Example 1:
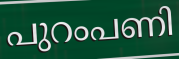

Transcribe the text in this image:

പുറംപണി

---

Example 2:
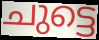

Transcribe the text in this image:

ചുട്ടെ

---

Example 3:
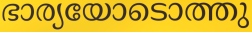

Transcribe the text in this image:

ഭാര്യയോടൊത്തു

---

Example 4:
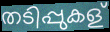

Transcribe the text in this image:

തടിപ്പുകള്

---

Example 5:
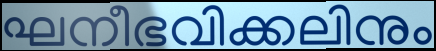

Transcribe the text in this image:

ഘനീഭവിക്കലിനും